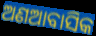
ଅଣଆବାସିକ